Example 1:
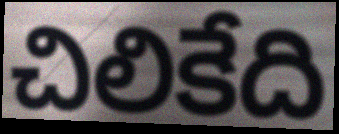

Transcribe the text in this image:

చిలికేది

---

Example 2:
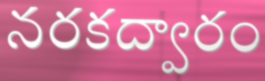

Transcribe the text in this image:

నరకద్వారం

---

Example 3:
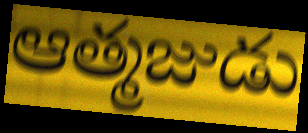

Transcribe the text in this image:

ఆత్మజుడు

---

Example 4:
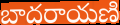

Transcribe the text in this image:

బాదరాయణి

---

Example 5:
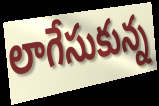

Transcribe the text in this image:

లాగేసుకున్న